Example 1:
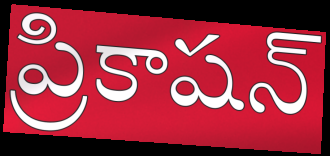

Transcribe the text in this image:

ప్రికాషన్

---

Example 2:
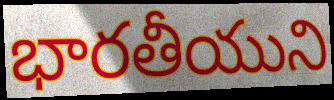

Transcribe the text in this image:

భారతీయుని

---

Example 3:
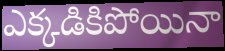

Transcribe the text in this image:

ఎక్కడికిపోయినా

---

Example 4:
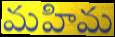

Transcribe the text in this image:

మహిమ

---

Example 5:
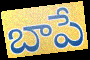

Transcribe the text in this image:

బాపే